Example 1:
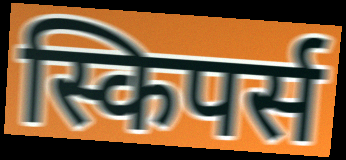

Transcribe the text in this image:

स्किपर्स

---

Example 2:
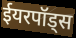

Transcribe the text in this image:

ईयरपॉड्स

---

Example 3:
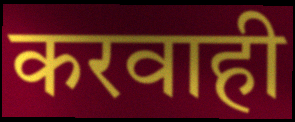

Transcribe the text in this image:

करवाही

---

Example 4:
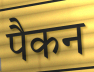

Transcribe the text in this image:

पैकन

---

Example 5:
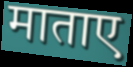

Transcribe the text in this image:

माताए